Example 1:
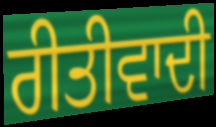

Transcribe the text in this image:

ਰੀਤੀਵਾਦੀ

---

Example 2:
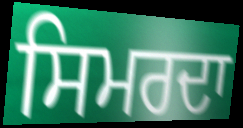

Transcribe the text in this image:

ਸਿਮਰਦਾ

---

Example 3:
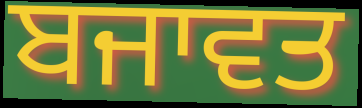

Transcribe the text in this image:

ਬਜਾਵਤ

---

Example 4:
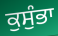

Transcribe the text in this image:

ਕੁਸੁੰਭਾ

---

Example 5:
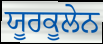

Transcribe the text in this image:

ਯੂਰਕੂਲੇਨ